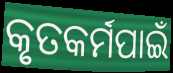
କୃତକର୍ମପାଇଁ